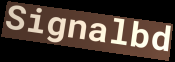
Signalbd